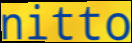
nitto